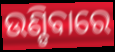
ଉଣ୍ଡିବାରେ